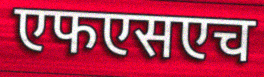
एफएसएच